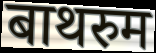
बाथरुम